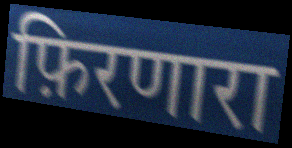
फ़िरणारा